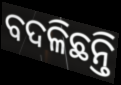
ବଦଳିଛନ୍ତି